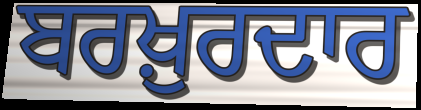
ਬਰਖ਼ੁਰਦਾਰ